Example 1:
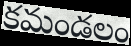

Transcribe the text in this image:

కమండలం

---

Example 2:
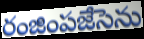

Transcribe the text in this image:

రంజింపజేసెను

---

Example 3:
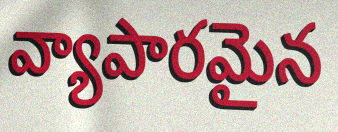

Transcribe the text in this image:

వ్యాపారమైన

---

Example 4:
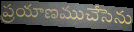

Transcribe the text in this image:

ప్రయాణముచేసెను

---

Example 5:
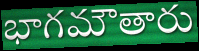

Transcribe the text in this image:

భాగమౌతారు